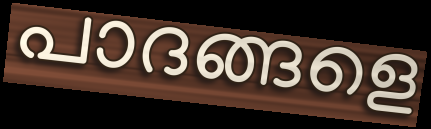
പാദങ്ങളെ